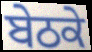
ਬੇਠਕੇ